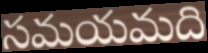
సమయమది